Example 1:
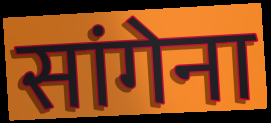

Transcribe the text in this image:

सांगेना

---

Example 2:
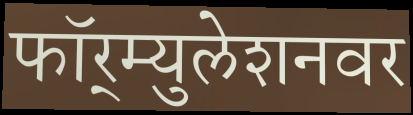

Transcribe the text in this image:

फॉर्म्युलेशनवर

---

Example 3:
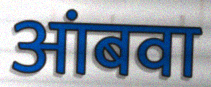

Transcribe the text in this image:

आंबवा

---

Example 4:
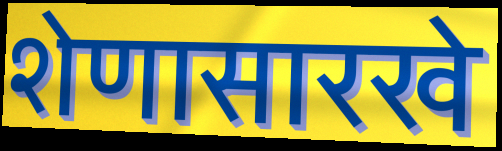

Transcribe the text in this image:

शेणासारखे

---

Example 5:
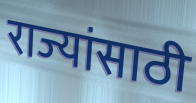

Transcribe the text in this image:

राज्यांसाठी